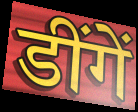
डींगें